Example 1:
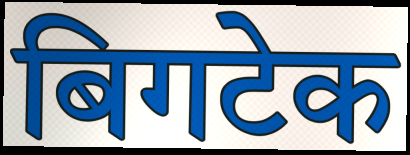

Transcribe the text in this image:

बिगटेक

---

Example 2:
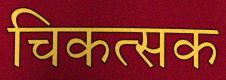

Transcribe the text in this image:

चिकत्सक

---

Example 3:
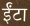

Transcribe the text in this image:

ईंटा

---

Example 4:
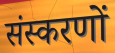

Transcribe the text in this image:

संस्करणों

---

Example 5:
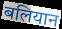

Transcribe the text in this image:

बलियान